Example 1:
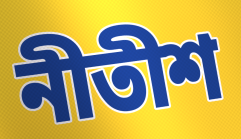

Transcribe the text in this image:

নীতীশ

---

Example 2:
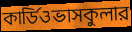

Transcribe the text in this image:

কার্ডিওভাসকুলার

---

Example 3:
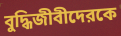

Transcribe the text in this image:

বুদ্ধিজীবীদেরকে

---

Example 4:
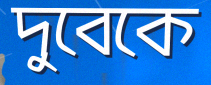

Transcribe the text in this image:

দুবেকে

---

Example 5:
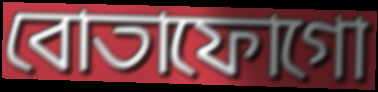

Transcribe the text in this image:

বোতাফোগো